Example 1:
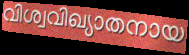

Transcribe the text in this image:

വിശ്വവിഖ്യാതനായ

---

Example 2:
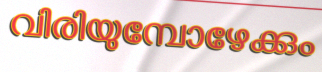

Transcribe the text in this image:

വിരിയുമ്പോഴേക്കും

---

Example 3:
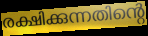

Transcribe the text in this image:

രക്ഷിക്കുന്നതിന്റെ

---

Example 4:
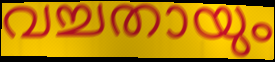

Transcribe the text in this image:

വച്ചതായും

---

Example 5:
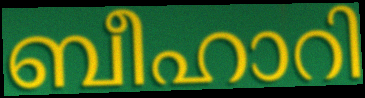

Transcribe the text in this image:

ബീഹാറി